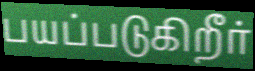
பயப்படுகிறீர்